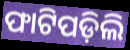
ଫାଟିପଡ଼ିଲି